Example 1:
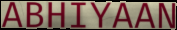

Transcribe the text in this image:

ABHIYAAN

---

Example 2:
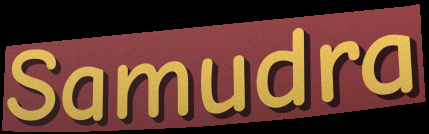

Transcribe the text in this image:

Samudra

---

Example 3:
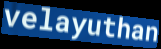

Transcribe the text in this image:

velayuthan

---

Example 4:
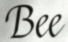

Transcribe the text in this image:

Bee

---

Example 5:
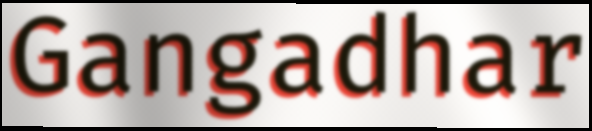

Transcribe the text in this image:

Gangadhar